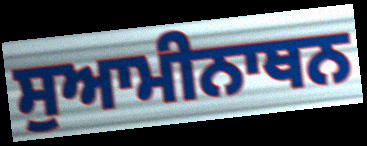
ਸੁਆਮੀਨਾਥਨ